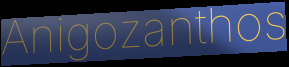
Anigozanthos